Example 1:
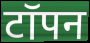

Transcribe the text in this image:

टॉपन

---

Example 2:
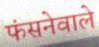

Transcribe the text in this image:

फंसनेवाले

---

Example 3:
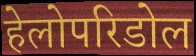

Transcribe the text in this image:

हेलोपरिडोल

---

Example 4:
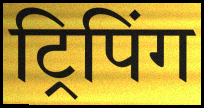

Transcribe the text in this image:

ट्रिपिंग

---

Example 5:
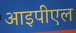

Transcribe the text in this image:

आइपीएल